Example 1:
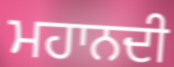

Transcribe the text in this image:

ਮਹਾਨਦੀ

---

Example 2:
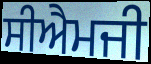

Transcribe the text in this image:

ਸੀਐਮਜੀ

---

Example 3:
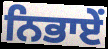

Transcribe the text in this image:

ਨਿਭਾਏਂ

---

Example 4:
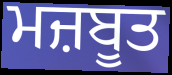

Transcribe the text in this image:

ਮਜ਼ਬੂਤ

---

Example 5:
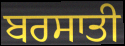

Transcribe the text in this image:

ਬਰਸਾਤੀ